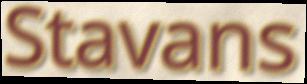
Stavans